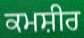
ਕਮਸ਼ੀਰ